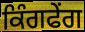
ਕਿੰਗਫੇਂਗ